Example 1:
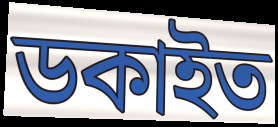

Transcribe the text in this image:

ডকাইত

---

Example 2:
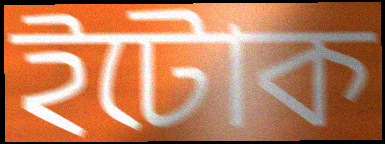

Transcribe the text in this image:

ইটোক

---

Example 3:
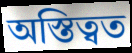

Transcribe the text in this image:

অস্তিত্বত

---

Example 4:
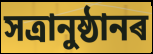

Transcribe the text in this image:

সত্ৰানুষ্ঠানৰ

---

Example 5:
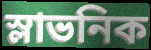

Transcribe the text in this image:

স্লাভনিক